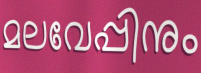
മലവേപ്പിനും